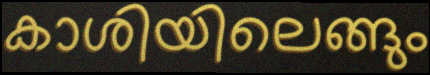
കാശിയിലെങ്ങും